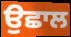
ਉਛਾਲ